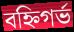
বহ্নিগর্ভ